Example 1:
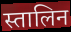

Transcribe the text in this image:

स्तालिन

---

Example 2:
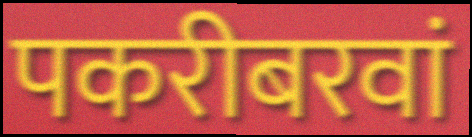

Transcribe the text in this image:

पकरीबरवां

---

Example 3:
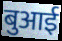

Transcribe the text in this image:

बुआई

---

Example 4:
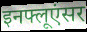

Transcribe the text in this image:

इनफ्लूएंसर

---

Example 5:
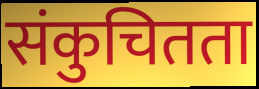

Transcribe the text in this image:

संकुचितता